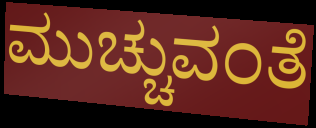
ಮುಚ್ಚುವಂತೆ